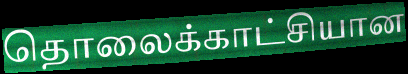
தொலைக்காட்சியான